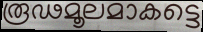
രൂഢമൂലമാകട്ടെ